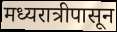
मध्यरात्रीपासून